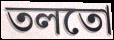
তলতো